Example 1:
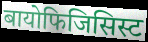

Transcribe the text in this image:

बायोफिजिसिस्ट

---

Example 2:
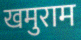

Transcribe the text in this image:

खमुराम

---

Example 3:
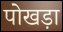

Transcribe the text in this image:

पोखड़ा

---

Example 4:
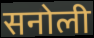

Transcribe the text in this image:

सनोली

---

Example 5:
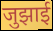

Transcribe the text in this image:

जुझाई